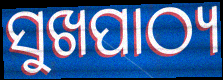
ସୁଖପାଠ୍ୟ